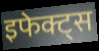
इफेक्ट्स